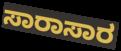
ಸಾರಾಸಾರ